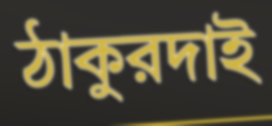
ঠাকুরদাই